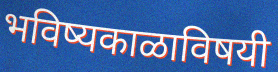
भविष्यकाळाविषयी